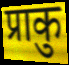
प्राकु